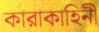
কারাকাহিনী